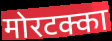
मोरटक्का